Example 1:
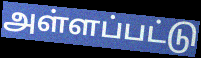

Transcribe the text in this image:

அள்ளப்பட்டு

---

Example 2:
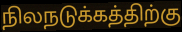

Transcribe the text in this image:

நிலநடுக்கத்திற்கு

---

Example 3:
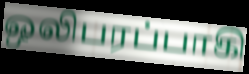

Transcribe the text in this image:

ஒலிபரப்பாகி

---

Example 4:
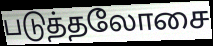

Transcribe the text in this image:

படுத்தலோசை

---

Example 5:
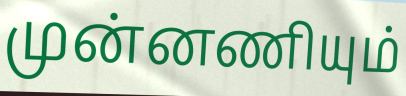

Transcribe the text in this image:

முன்னணியும்